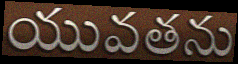
యువతను